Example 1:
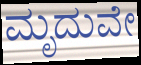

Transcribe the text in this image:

ಮೃದುವೇ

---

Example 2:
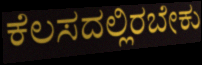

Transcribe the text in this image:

ಕೆಲಸದಲ್ಲಿರಬೇಕು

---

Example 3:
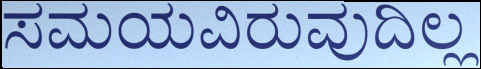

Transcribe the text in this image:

ಸಮಯವಿರುವುದಿಲ್ಲ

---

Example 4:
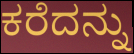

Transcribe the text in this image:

ಕರೆದನ್ನು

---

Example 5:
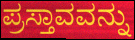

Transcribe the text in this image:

ಪ್ರಸ್ತಾವವನ್ನು